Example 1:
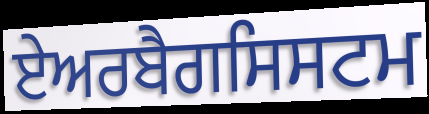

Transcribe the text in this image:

ਏਅਰਬੈਗਸਿਸਟਮ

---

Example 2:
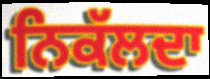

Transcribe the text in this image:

ਨਿਕੱਲਦਾ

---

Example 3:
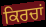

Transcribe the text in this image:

ਕਿਰਚਾਂ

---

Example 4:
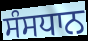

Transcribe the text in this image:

ਸੰਸਧਾਨ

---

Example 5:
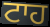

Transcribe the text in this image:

ਟਾਹ